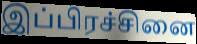
இப்பிரச்சினை